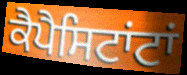
ਕੈਪੈਸਿਟਾਂਟਾਂ